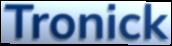
Tronick